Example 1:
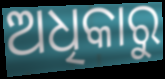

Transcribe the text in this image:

ଅଧିକାରୁ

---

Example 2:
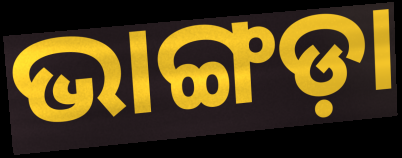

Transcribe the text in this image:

ଭାଙ୍ଗଡ଼ା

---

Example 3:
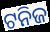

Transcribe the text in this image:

ଟନିଜ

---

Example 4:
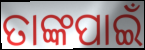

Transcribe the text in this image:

ତାଙ୍କପାଇଁ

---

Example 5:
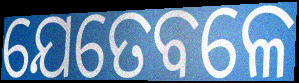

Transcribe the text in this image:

ଯେତେବଳେ